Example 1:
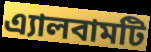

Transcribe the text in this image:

এ্যালবামটি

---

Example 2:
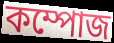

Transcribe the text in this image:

কম্পোজ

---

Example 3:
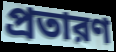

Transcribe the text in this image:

প্রতারণ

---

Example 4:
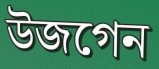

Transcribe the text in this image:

উজগেন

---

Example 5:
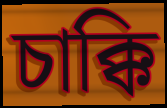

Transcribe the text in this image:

চাক্কি